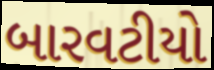
બારવટીયો